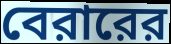
বেরারের